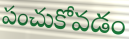
పంచుకోవడం